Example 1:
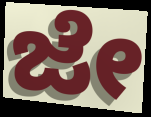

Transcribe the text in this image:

ಜೇ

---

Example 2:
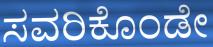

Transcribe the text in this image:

ಸವರಿಕೊಂಡೇ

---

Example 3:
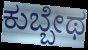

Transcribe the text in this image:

ಕುಬ್ಬೇಥ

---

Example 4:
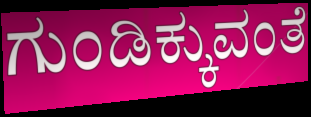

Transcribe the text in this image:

ಗುಂಡಿಕ್ಕುವಂತೆ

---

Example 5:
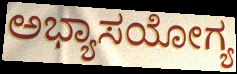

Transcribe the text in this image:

ಅಭ್ಯಾಸಯೋಗ್ಯ